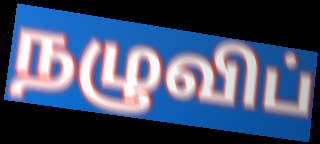
நழுவிப்